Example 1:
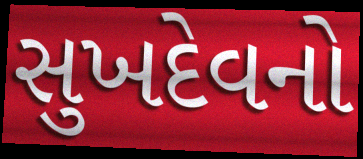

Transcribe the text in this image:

સુખદેવનો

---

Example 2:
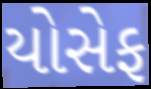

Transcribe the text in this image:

યોસેફ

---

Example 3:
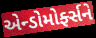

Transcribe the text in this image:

એન્ડોમોર્ફ્સને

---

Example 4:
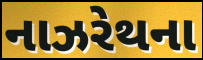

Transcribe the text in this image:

નાઝરેથના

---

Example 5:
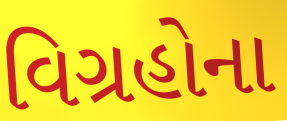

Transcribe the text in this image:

વિગ્રહોના